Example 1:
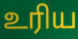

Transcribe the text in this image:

உரிய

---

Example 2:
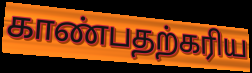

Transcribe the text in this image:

காண்பதற்கரிய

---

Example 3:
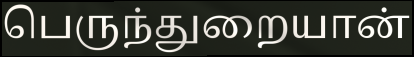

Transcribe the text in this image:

பெருந்துறையான்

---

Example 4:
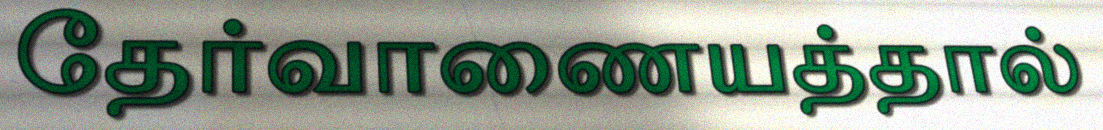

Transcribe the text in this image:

தேர்வாணையத்தால்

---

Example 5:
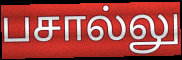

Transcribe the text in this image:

பசால்லு